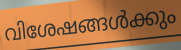
വിശേഷങ്ങൾക്കും